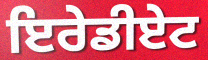
ਇਰੇਡੀਏਟ